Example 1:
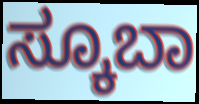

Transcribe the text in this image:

ಸ್ಕೂಬಾ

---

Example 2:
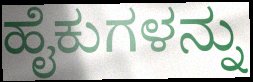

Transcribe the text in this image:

ಹೈಕುಗಳನ್ನು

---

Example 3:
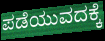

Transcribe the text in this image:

ಪಡೆಯುವದಕ್ಕೆ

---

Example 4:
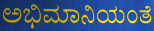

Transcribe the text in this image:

ಅಭಿಮಾನಿಯಂತೆ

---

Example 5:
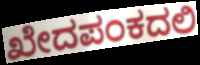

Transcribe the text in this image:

ಖೇದಪಂಕದಲಿ